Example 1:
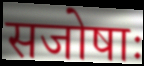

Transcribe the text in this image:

सजोषाः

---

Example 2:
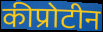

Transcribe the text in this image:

कीप्रोटीन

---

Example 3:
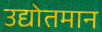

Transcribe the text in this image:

उद्योतमान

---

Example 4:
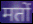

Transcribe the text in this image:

मतों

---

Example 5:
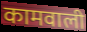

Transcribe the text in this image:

कामवाली